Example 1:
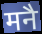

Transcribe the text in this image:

मनै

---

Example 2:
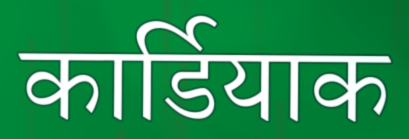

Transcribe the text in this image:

कार्डियाक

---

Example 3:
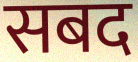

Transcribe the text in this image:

सबद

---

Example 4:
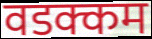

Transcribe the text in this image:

वडक्कम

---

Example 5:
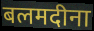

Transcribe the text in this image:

बलमदीना